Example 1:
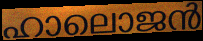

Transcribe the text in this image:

ഹാലൊജൻ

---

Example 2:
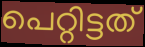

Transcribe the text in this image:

പെറ്റിട്ടത്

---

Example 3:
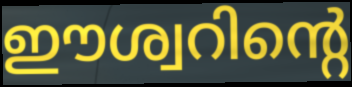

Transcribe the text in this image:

ഈശ്വറിന്റെ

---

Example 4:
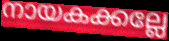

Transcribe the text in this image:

നായകക്കല്ലേ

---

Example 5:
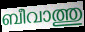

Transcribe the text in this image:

ബീവാത്തു